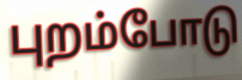
புறம்போடு